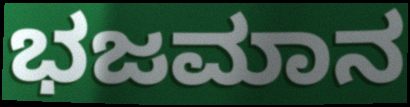
ಭಜಮಾನ